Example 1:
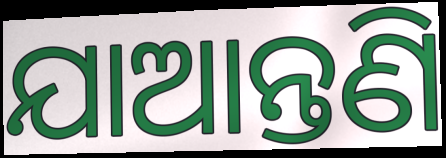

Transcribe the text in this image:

ଯାଆନ୍ତଣି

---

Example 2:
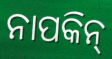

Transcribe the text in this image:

ନାପକିନ୍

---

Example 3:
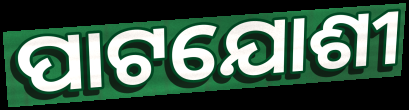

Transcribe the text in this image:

ପାଟଯୋଶୀ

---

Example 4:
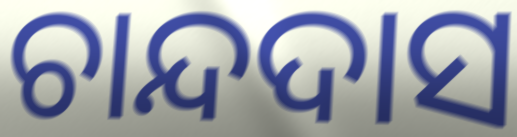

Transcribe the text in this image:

ଚାନ୍ଦଦାସ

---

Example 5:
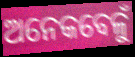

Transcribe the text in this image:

ଅନେକବେଳୁଁ